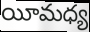
యీమధ్య